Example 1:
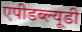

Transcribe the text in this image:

एपीडब्ल्यूडी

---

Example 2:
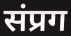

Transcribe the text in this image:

संप्रग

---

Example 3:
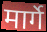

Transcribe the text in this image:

मार्गे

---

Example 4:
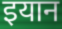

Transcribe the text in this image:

इयान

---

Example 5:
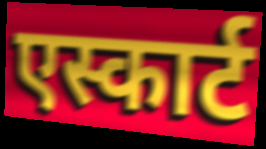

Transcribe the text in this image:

एस्कार्ट